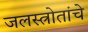
जलस्त्रोतांचे